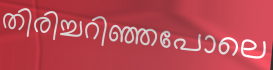
തിരിച്ചറിഞ്ഞപോലെ